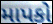
માપકો